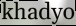
khadyo